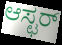
ಆಸ್ಟರ್